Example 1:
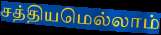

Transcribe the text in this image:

சத்தியமெல்லாம்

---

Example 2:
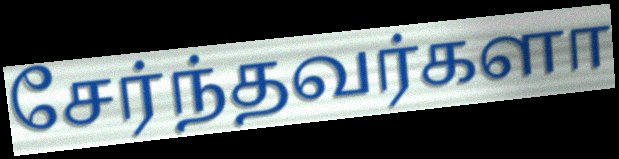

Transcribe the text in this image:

சேர்ந்தவர்களா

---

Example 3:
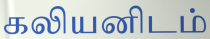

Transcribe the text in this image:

கலியனிடம்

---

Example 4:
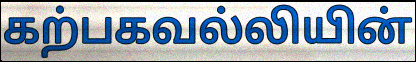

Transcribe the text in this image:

கற்பகவல்லியின்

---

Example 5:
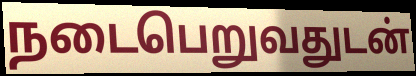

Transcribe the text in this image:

நடைபெறுவதுடன்